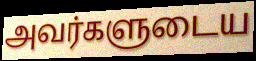
அவர்களுடைய